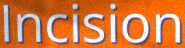
Incision